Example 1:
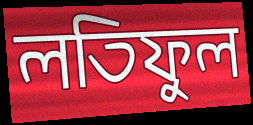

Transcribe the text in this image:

লতিফুল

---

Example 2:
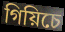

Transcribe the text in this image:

গিয়িচে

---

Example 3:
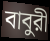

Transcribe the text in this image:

বাবুরী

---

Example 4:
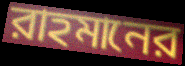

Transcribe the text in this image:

রাহমানের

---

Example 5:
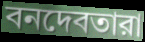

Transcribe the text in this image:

বনদেবতারা